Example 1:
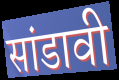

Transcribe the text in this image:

सांडावी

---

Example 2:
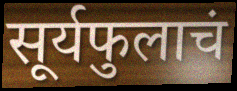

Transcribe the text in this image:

सूर्यफुलाचं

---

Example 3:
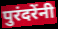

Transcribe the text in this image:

पुरंदरेंनी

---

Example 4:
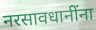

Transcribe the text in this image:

नरसावधानींना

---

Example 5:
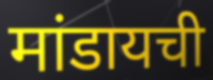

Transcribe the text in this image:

मांडायची